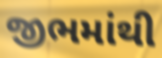
જીભમાંથી